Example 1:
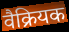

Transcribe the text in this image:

वैक्रियक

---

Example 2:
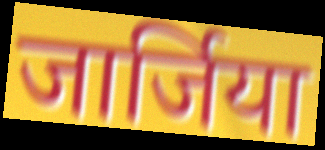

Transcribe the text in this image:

जार्जिया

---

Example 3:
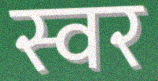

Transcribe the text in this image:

स्वर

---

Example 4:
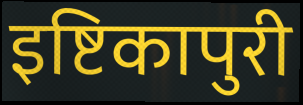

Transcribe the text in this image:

इष्टिकापुरी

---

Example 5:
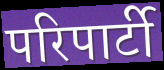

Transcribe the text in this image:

परिपार्टी